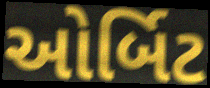
ઓર્બિટ